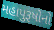
મહાપુરૂષોનો